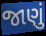
જાણું